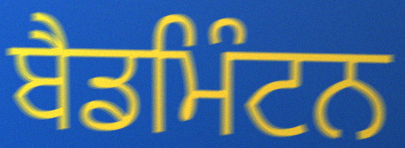
ਬੈਡਮਿੰਟਨ